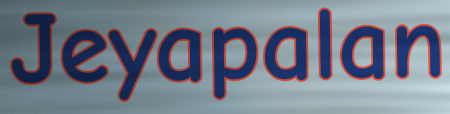
Jeyapalan